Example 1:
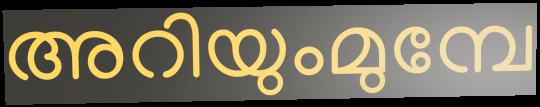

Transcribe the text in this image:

അറിയുംമുമ്പേ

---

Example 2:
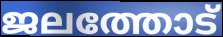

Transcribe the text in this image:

ജലത്തോട്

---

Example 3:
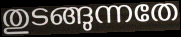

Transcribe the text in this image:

തുടങ്ങുന്നതേ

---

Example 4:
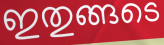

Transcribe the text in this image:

ഇതുങ്ങടെ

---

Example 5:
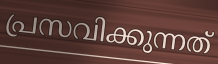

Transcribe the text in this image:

പ്രസവിക്കുന്നത്